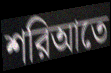
শরিআতে